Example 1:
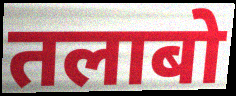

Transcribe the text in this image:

तलाबो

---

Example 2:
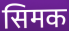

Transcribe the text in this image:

सिमक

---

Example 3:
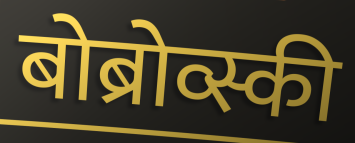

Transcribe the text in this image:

बोब्रोव्स्की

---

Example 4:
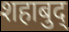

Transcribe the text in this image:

शहाबुद्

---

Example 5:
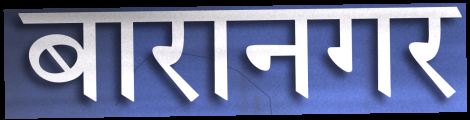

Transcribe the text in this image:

बारानगर